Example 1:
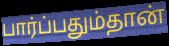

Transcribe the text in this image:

பார்ப்பதும்தான்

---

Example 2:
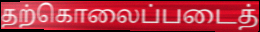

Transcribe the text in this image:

தற்கொலைப்படைத்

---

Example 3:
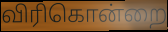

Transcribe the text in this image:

விரிகொன்றை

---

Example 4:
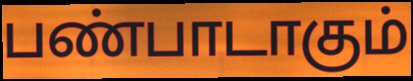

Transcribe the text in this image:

பண்பாடாகும்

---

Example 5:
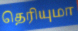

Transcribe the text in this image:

தெரியுமா